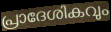
പ്രാദേശികവും